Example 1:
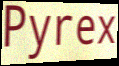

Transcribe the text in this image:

Pyrex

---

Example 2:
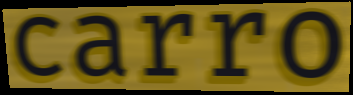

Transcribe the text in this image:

carro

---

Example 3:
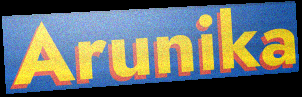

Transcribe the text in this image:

Arunika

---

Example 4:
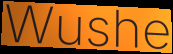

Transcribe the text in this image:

Wushe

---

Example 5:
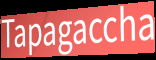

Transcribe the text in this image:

Tapagaccha